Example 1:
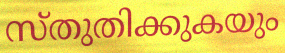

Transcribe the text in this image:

സ്തുതിക്കുകയും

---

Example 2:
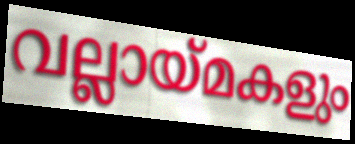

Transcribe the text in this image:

വല്ലായ്മകളും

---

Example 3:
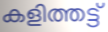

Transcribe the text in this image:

കളിത്തട്ട്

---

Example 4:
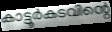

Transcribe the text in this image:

കാട്ടൂർകടവിന്റെ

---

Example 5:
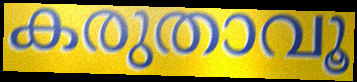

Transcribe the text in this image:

കരുതാവൂ